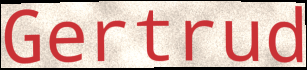
Gertrud